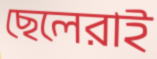
ছেলেরাই